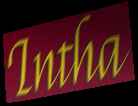
Intha